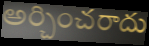
అర్చించరాదు